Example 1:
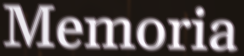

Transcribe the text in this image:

Memoria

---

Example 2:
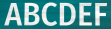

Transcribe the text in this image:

ABCDEF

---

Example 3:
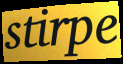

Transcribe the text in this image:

stirpe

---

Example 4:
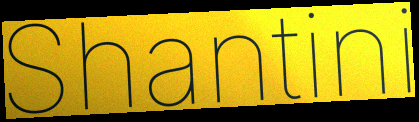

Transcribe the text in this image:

Shantini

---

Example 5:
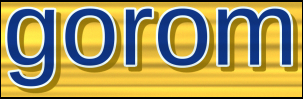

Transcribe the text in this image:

gorom